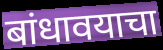
बांधावयाचा